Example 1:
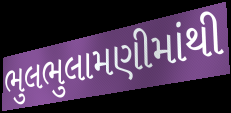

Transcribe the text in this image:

ભુલભુલામણીમાંથી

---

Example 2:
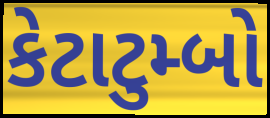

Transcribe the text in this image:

કેટાટુમ્બો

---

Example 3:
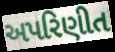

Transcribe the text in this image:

અપરિણીત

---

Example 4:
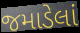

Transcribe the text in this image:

જમાડેલાં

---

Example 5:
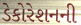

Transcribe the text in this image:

ડેકોરેશનની